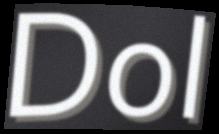
Dol